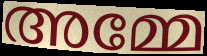
അമ്മേ